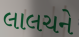
લાલચને